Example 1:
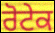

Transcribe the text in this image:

ਰੋਟੇਕ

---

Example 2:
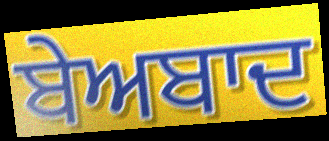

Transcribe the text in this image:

ਬੇਅਬਾਦ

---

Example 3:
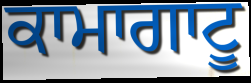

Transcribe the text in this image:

ਕਾਮਾਗਾਟੂ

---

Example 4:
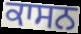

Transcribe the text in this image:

ਕਾਸਨ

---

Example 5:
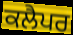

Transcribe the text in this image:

ਕਲੈਪਰ